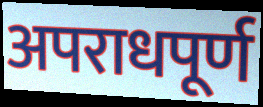
अपराधपूर्ण